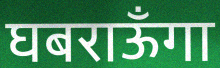
घबराऊँगा